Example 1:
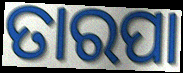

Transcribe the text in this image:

ତାରପା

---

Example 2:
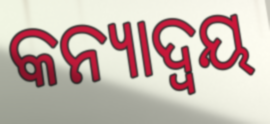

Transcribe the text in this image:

କନ୍ୟାଦ୍ୱୟ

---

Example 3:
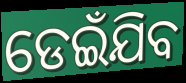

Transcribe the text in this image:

ଡେଇଁଯିବ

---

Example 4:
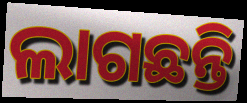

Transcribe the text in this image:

ଲାଗଛନ୍ତି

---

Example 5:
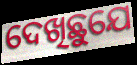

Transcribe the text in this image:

ଦେଖିଛୁଯେ